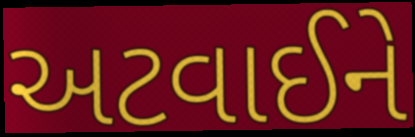
અટવાઈને